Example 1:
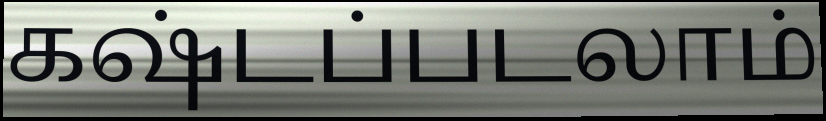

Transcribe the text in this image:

கஷ்டப்படலாம்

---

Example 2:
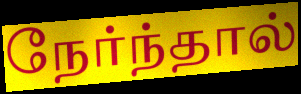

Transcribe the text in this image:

நேர்ந்தால்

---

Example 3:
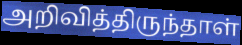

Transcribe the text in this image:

அறிவித்திருந்தாள்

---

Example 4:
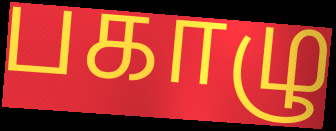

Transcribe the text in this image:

பகாழு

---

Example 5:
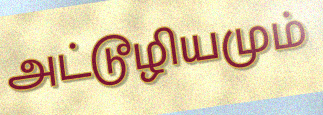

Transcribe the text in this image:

அட்டூழியமும்